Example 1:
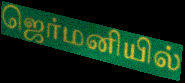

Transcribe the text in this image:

ஜெர்மனியில்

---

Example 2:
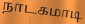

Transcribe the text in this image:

நாடகமாடி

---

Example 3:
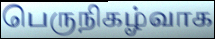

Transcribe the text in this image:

பெருநிகழ்வாக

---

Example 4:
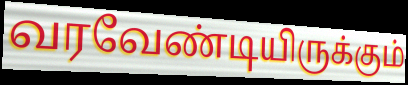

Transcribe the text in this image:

வரவேண்டியிருக்கும்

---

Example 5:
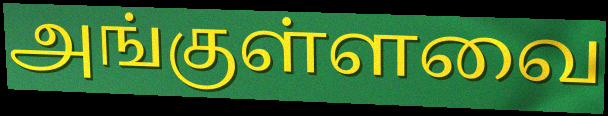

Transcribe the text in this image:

அங்குள்ளவை